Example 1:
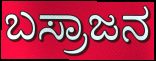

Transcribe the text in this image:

ಬಸ್ರಾಜನ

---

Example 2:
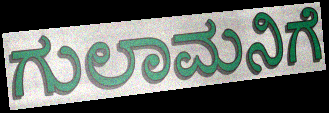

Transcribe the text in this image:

ಗುಲಾಮನಿಗೆ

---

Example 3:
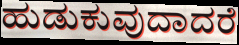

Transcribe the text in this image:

ಹುಡುಕುವುದಾದರೆ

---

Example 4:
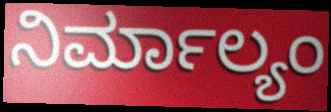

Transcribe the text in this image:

ನಿರ್ಮಾಲ್ಯಂ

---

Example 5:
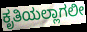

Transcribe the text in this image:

ಕೃತಿಯಲ್ಲಾಗಲೀ